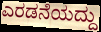
ಎರಡನೆಯದ್ದು